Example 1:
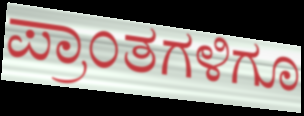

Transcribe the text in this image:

ಪ್ರಾಂತಗಳಿಗೂ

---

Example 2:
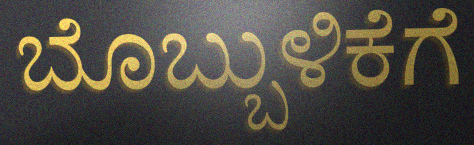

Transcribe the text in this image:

ಬೊಬ್ಬುಳಿಕೆಗೆ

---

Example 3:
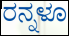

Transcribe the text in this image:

ರನ್ನಳೂ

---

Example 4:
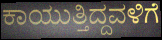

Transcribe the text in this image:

ಕಾಯುತ್ತಿದ್ದವಳಿಗೆ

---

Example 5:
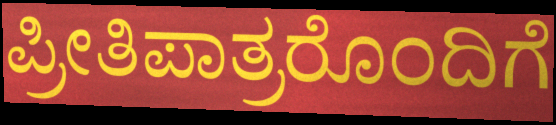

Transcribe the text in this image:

ಪ್ರೀತಿಪಾತ್ರರೊಂದಿಗೆ